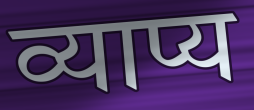
व्याप्य